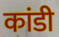
कांडी